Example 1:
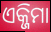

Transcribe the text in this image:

ଏକ୍ଜିମା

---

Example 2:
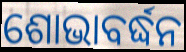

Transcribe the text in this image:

ଶୋଭାବର୍ଦ୍ଧନ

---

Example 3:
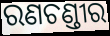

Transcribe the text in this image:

ରଣଚଣ୍ଡୀର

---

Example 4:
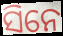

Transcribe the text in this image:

ସିନେ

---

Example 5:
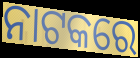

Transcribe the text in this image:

ନାଟକରେ